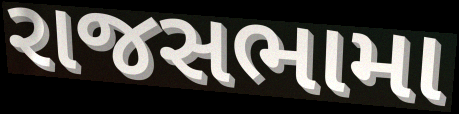
રાજસભામા